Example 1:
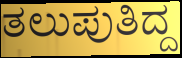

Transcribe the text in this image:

ತಲುಪುತಿದ್ದ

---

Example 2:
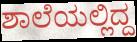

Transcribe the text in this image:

ಶಾಲೆಯಲ್ಲಿದ್ದ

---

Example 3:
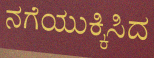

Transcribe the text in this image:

ನಗೆಯುಕ್ಕಿಸಿದ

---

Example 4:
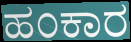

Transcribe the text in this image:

ಹಂಕಾರ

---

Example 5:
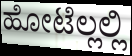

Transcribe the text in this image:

ಹೋಟೆಲ್ಲಲ್ಲಿ